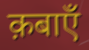
क़बाएँ